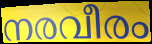
നരവീരം